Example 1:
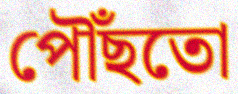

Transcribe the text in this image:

পৌঁছতো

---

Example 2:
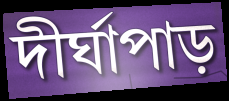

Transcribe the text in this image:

দীর্ঘাপাড়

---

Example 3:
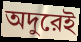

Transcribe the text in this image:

অদুরেই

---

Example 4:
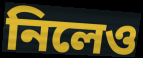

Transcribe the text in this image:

নিলেও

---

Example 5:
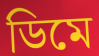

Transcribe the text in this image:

ডিমে